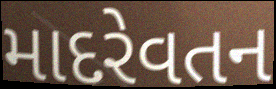
માદરેવતન